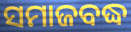
ସମାଜବଦ୍ଧ